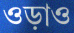
ওড়াও